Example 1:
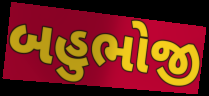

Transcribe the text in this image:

બહુભોજી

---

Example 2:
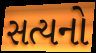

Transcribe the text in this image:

સત્યનો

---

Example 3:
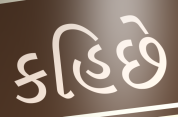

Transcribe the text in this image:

કહિછે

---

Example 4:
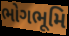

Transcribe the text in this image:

ભોગભૂમિ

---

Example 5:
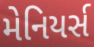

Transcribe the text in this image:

મેનિયર્સ